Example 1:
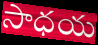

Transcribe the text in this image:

సాధయ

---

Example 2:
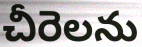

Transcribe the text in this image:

చీరెలను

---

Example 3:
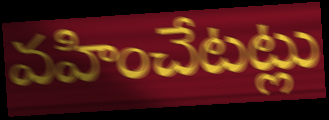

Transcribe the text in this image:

వహించేటట్లు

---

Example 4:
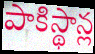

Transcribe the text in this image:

పాకిస్థాన్ల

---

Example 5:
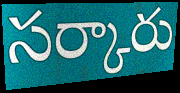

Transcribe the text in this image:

సర్కారు